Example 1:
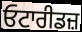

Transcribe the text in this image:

ਓਟਾਰੀਡਜ਼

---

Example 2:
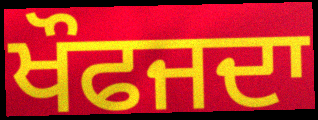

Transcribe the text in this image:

ਖੌਫਜਦਾ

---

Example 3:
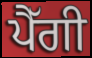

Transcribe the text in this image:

ਪੈੱਗੀ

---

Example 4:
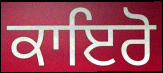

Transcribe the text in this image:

ਕਾਇਰੋ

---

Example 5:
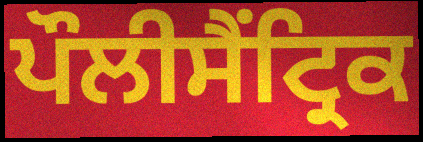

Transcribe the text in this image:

ਪੌਲੀਸੈਂਟ੍ਰਿਕ